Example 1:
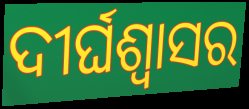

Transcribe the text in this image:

ଦୀର୍ଘଶ୍ବାସର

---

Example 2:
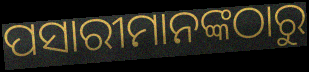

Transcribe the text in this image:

ପସାରୀମାନଙ୍କଠାରୁ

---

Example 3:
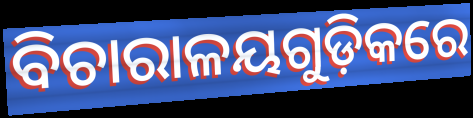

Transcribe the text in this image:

ବିଚାରାଳୟଗୁଡ଼ିକରେ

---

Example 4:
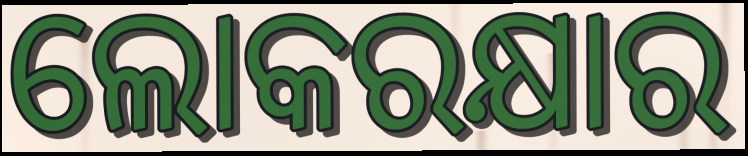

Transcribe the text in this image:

ଲୋକରକ୍ଷାର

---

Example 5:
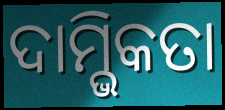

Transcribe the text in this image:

ଦାମ୍ଭିକତା